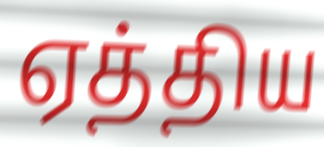
ஏத்திய